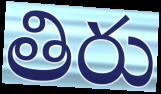
తిరు